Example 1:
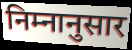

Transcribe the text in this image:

निम्‍नानुसार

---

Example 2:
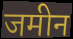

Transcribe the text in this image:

जमीन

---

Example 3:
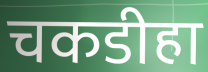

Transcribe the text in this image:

चकडीहा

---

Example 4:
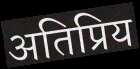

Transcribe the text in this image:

अतिप्रिय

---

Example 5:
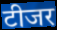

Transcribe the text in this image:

टीजर